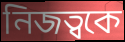
নিজত্বকে